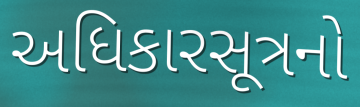
અધિકારસૂત્રનો